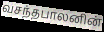
வசந்தபாலனின்